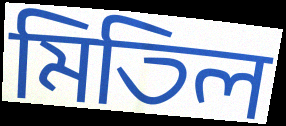
মিতিল